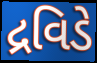
દ્રવિડે